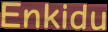
Enkidu